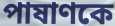
পাষাণকে